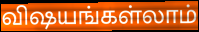
விஷயங்கள்லாம்